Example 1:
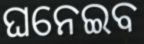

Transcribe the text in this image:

ଘନେଇବ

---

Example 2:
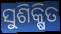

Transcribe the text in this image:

ସୁଶିକ୍ଷିତ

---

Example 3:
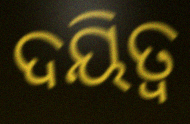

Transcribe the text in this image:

ଦୟିତ୍ୱ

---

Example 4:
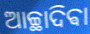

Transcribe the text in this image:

ଆଚ୍ଛାଦିଵା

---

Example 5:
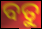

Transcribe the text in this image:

ବତୁ